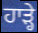
ਹਾੜ੍ਹੇ